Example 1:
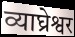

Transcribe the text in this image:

व्याघ्रेश्वर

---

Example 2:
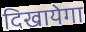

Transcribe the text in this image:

दिखायेगा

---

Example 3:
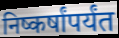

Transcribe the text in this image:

निष्कर्षांपर्यंत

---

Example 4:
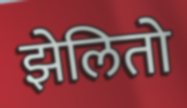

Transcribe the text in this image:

झेलितो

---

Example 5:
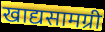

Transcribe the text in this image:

खाद्यसामग्री